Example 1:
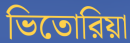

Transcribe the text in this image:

ভিতোরিয়া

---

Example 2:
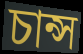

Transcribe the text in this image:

চান্স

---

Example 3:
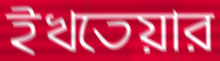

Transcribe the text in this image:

ইখতেয়ার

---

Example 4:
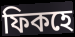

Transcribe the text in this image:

ফিকহে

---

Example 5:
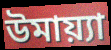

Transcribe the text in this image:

উমায়্যা